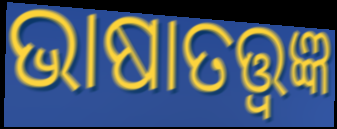
ଭାଷାତତ୍ତ୍ୱଜ୍ଞ